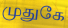
முதுகே